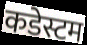
कडेस्टम